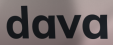
dava